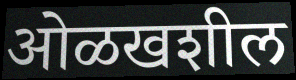
ओळखशील